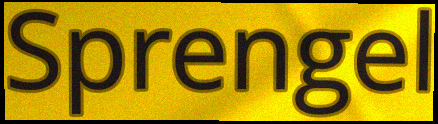
Sprengel